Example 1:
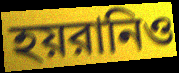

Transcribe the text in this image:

হয়রানিও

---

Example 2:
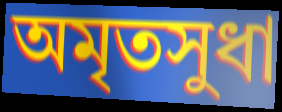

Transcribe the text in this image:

অমৃতসুধা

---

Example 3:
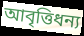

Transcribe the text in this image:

আবৃত্তিধন্য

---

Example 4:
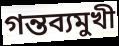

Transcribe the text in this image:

গন্তব্যমুখী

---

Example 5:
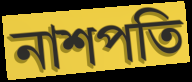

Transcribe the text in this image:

নাশপতি